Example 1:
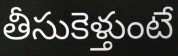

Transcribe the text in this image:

తీసుకెళ్తుంటే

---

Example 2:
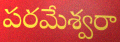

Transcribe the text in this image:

పరమేశ్వరా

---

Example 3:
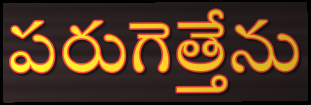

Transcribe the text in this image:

పరుగెత్తేను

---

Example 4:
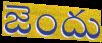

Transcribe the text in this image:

జెందు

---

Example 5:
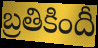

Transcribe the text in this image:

బ్రతికిందీ